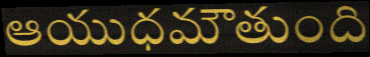
ఆయుధమౌతుంది